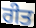
ਰੀਤ